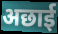
अछाई